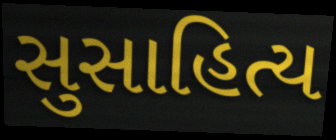
સુસાહિત્ય